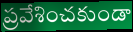
ప్రవేశించకుండా